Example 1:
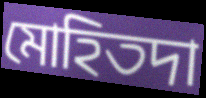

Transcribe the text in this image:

মোহিতদা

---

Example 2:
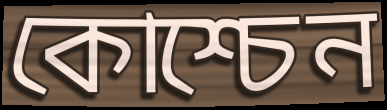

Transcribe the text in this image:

কোশ্চেন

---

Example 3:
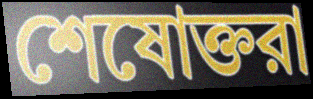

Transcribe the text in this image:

শেষোক্তরা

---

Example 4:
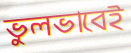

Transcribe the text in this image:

ভুলভাবেই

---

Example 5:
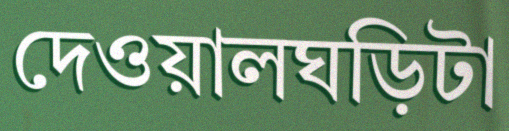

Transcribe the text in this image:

দেওয়ালঘড়িটা